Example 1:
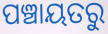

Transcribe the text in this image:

ପଞ୍ଚାୟତରୁ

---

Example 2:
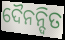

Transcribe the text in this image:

ଦୈନନ୍ଦିତ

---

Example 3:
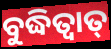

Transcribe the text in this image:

ବୁଦ୍ଧିତ୍ୱାତ୍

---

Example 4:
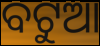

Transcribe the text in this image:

ବଟୁଆ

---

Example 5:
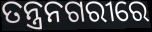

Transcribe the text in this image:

ତନ୍ତ୍ରନଗରୀରେ